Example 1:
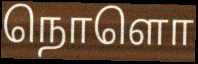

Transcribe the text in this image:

நொளொ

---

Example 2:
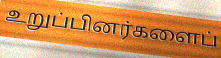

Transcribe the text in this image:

உறுப்பினர்களைப்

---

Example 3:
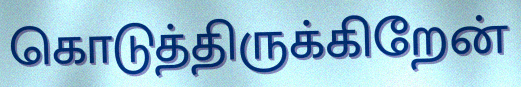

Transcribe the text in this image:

கொடுத்திருக்கிறேன்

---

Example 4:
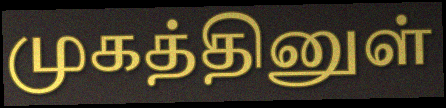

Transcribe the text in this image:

முகத்தினுள்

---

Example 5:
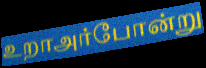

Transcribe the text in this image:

உறாஅர்போன்று